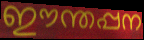
ഈന്തപ്പന